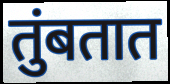
तुंबतात